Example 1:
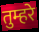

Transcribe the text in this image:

तुम्हरे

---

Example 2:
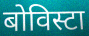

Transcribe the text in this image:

बोविस्टा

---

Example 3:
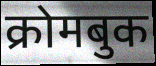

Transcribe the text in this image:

क्रोमबुक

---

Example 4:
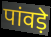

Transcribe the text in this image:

पांवड़े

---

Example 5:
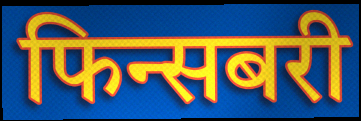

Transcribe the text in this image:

फिन्सबरी